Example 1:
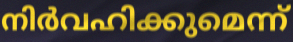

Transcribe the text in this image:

നിർവഹിക്കുമെന്ന്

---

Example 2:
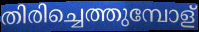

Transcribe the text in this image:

തിരിച്ചെത്തുമ്പോള്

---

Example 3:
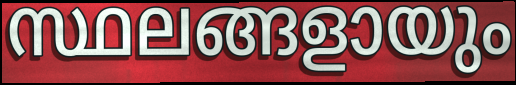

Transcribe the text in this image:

സ്ഥലങ്ങളായും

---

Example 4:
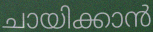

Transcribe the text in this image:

ചായിക്കാൻ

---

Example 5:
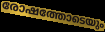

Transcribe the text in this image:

രോഷത്തോടെയും